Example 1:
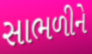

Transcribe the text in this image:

સાભળીને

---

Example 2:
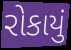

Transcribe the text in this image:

રોકાયું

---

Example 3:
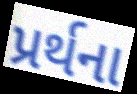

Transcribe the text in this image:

પ્રર્થના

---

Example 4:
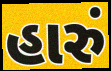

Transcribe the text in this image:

હારું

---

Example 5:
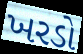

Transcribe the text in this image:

ખરડો